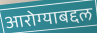
आरोग्याबद्दल